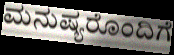
ಮನುಷ್ಯರೊಂದಿಗೆ